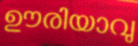
ഊരിയാവു